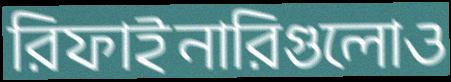
রিফাইনারিগুলোও